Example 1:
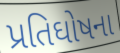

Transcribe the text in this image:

પ્રતિઘોષના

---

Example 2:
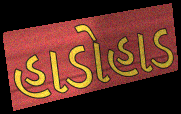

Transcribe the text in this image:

હાડોહાડ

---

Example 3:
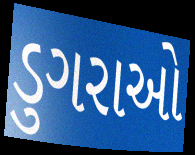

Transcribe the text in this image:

ડુગરાઓ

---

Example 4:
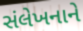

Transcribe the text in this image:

સંલેખનાને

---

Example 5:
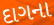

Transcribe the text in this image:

દાગના